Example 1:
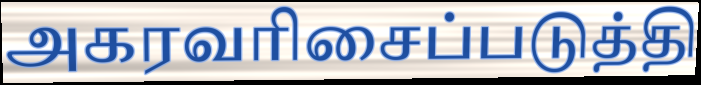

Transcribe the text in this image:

அகரவரிசைப்படுத்தி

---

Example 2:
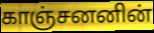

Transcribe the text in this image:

காஞ்சனனின்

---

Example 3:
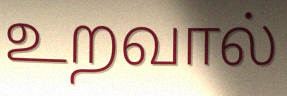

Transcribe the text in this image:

உறவால்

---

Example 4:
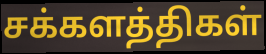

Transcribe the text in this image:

சக்களத்திகள்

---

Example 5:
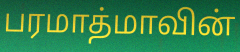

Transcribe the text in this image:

பரமாத்மாவின்